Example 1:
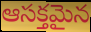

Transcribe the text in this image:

ఆసక్తమైన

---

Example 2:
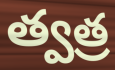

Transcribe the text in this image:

త్వత్ర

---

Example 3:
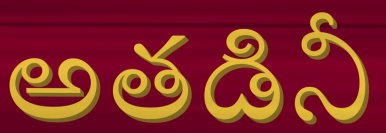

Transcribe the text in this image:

అతడినీ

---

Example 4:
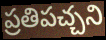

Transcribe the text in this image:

ప్రతిపచ్చని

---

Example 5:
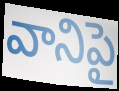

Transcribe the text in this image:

వానిపై